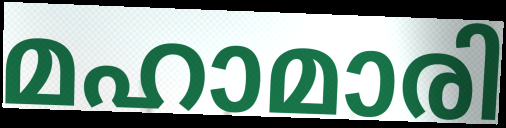
മഹാമാരി